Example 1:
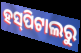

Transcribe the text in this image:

ହସ୍‍ପିଟାଲରୁ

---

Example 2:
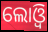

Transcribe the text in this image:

ଲୋଓ୍ବି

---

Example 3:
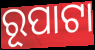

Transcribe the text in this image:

ରୂପାଟା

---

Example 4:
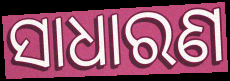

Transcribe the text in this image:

ସାଧାରଣ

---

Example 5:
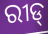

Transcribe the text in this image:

ରୀଡ୍